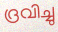
ദ്രവിച്ചു